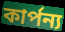
কার্পন্য